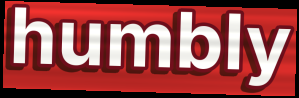
humbly